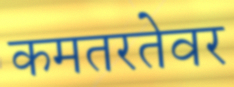
कमतरतेवर